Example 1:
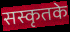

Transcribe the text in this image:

सस्कृतके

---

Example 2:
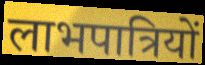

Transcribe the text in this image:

लाभपात्रियों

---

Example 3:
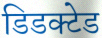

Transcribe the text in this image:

डिडक्टेड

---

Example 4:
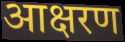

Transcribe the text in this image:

आक्षरण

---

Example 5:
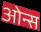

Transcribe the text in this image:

ओन्स